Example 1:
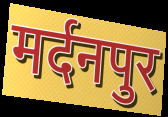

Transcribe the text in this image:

मर्दनपुर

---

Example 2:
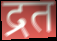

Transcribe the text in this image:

द्रत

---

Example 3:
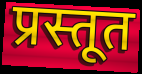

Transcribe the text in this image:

प्रस्तूत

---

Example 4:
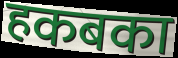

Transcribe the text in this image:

हकबका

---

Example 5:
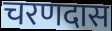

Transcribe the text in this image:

चरणदास